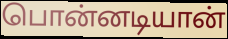
பொன்னடியான்